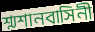
শ্মশানবাসিনী